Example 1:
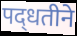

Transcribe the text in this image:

पद्‍धतीने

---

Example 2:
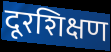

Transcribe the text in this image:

दूरशिक्षण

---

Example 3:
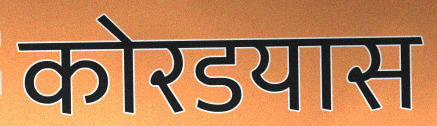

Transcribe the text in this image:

कोरडयास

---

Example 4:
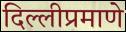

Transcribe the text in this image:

दिल्लीप्रमाणे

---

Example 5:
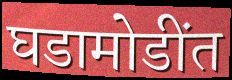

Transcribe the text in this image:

घडामोडींत